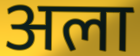
अला